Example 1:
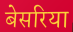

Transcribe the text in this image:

बेसरिया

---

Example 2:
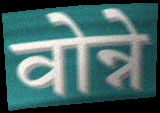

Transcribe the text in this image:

वोन्ने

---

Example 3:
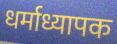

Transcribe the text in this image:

धर्माध्यापक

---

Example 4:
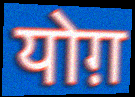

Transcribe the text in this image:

योग़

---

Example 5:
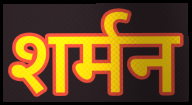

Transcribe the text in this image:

शर्मन